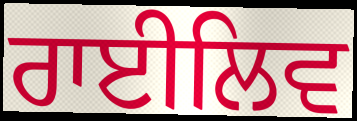
ਰਾਈਲਿਵ